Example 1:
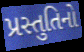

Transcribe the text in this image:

પ્રસ્તુતિનો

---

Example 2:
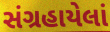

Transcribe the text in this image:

સંગ્રહાયેલાં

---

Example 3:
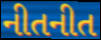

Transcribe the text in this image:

નીતનીત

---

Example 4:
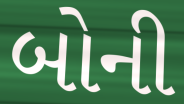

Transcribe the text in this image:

બોની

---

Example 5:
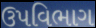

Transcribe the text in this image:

ઉપવિભાગ